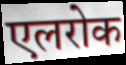
एलरोक